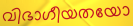
വിഭാഗീയതയോ